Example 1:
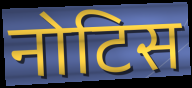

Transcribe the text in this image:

नोटिस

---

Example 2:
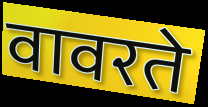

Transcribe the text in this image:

वावरते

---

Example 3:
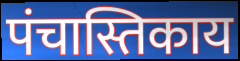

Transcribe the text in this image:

पंचास्तिकाय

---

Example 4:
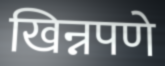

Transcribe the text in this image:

खिन्नपणे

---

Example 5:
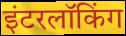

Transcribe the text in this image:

इंटरलॉकिंग